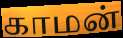
காமன்